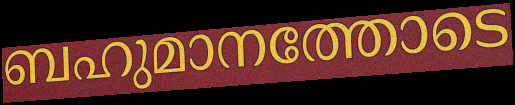
ബഹുമാനത്തോടെ